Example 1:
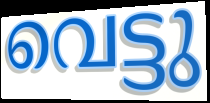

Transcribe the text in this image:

വെട്ടു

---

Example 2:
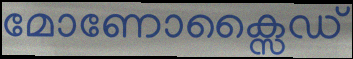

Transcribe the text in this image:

മോണോക്സൈഡ്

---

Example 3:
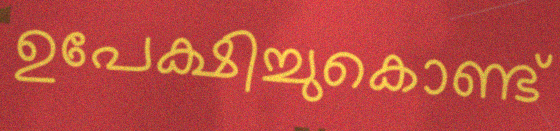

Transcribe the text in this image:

ഉപേക്ഷിച്ചുകൊണ്ട്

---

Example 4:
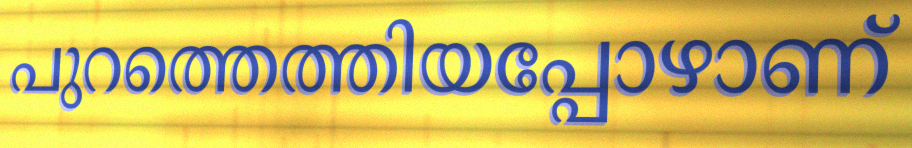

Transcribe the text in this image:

പുറത്തെത്തിയപ്പോഴാണ്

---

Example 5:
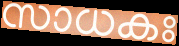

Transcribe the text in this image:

സാധകഃ